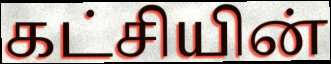
கட்சியின்